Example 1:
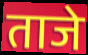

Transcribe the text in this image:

ताजे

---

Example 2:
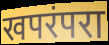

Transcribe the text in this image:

खपरंपरा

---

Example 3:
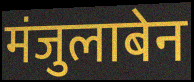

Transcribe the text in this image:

मंजुलाबेन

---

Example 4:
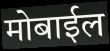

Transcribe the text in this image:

मोबाईल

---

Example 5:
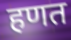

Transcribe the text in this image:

हणत